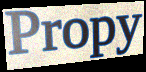
Propy